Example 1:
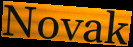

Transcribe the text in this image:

Novak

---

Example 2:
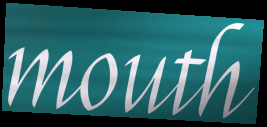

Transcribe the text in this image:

mouth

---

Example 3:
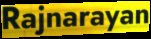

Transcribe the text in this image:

Rajnarayan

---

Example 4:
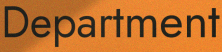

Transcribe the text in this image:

Department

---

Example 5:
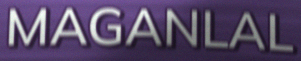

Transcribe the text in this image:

MAGANLAL